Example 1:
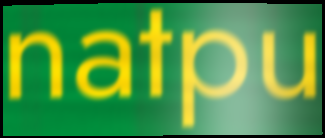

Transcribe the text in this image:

natpu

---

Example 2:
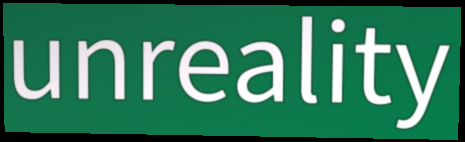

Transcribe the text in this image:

unreality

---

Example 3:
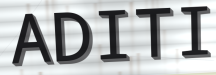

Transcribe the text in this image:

ADITI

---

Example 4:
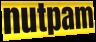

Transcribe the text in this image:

nutpam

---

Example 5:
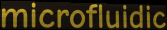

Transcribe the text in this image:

microfluidic